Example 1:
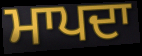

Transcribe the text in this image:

ਮਾਪਦਾ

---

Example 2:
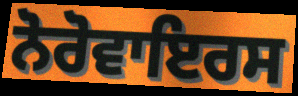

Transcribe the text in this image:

ਨੋਰੋਵਾਇਰਸ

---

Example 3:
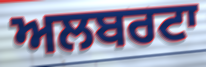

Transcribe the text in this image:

ਅਲਬਰਟਾ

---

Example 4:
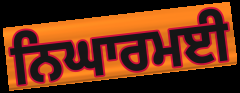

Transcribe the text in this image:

ਨਿਘਾਰਮਈ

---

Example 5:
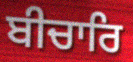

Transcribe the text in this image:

ਬੀਚਾਰਿ